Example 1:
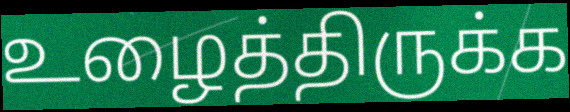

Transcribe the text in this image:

உழைத்திருக்க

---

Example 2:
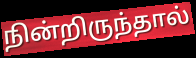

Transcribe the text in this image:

நின்றிருந்தால்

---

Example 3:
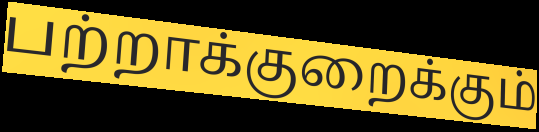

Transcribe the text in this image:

பற்றாக்குறைக்கும்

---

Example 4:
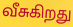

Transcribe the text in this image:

வீசுகிறது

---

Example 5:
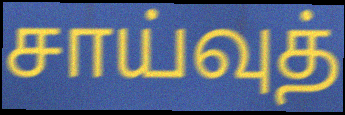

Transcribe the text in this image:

சாய்வுத்